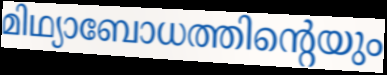
മിഥ്യാബോധത്തിന്റെയും